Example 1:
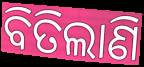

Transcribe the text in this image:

ବିତିଲାଣି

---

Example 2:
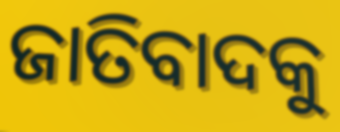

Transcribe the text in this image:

ଜାତିବାଦକୁ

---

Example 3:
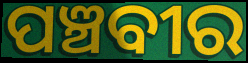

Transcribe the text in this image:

ପଞ୍ଚବୀର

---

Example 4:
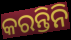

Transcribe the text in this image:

କରନ୍ତିନି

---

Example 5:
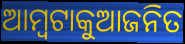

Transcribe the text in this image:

ଆମ୍ବଟାକୁଆଜନିତ